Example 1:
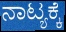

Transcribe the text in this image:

ನಾಟ್ಯಕ್ಕೆ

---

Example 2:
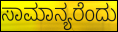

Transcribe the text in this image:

ಸಾಮಾನ್ಯರೆಂದು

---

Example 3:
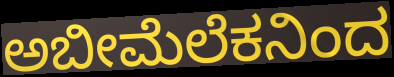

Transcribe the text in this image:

ಅಬೀಮೆಲೆಕನಿಂದ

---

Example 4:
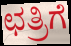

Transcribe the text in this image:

ಛತ್ರಿಗೆ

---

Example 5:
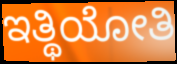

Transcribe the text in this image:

ಇತ್ಥಿಯೋತಿ